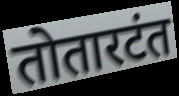
तोतारटंत